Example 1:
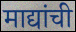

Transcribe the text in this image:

माद्यांची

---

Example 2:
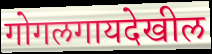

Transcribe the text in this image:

गोगलगायदेखील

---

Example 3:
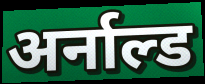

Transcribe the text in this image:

अर्नाल्ड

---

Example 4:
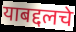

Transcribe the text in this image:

याबद्दलचे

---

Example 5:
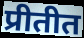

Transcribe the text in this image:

प्रीतीत